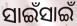
ସାଇଁସାଇଁ